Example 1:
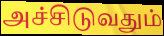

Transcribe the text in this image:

அச்சிடுவதும்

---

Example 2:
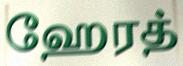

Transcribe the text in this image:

ஹேரத்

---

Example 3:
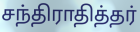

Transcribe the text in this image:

சந்திராதித்தர்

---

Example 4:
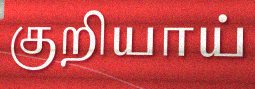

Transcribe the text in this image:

குறியாய்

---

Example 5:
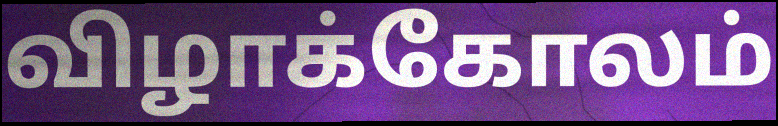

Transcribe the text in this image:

விழாக்கோலம்